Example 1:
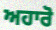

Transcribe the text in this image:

ਅਹਾਰੋ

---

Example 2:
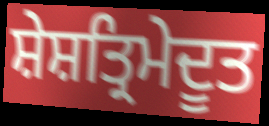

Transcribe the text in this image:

ਸ਼ੇਸ਼ਤ੍ਰਿਮੇਦੂਤ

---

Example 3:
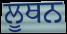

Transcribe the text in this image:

ਲੂਥਨ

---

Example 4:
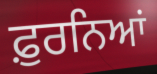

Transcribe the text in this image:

ਫ਼ੁਰਨਿਆਂ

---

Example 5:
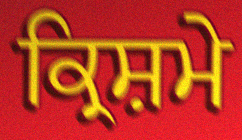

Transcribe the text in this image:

ਕ੍ਰਿਸ਼ਮੇ